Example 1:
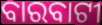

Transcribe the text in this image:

ବାରବାଟୀ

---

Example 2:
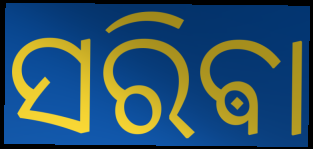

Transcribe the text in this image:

ସରିଵା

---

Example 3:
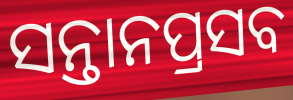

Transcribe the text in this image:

ସନ୍ତାନପ୍ରସବ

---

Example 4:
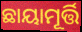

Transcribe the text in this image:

ଛାୟାମୂର୍ତ୍ତି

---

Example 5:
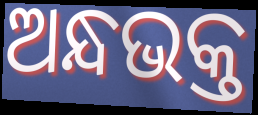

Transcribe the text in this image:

ଅନ୍ଧଭକ୍ତ